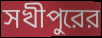
সখীপুরের